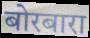
बोरबारा